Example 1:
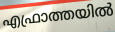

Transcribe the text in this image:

എഫ്രാത്തയിൽ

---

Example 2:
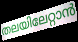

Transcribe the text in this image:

തലയിലേറ്റാൻ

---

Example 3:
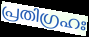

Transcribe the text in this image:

പ്രതിഗ്രഹഃ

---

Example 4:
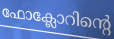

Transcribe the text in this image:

ഫോക്ലോറിന്റെ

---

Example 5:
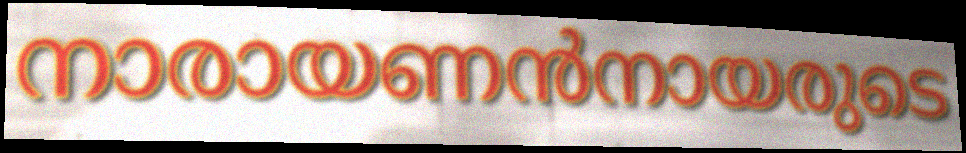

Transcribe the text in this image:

നാരായണൻനായരുടെ